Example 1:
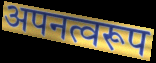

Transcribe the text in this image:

अपनत्वरूप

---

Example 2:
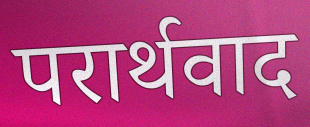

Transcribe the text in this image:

परार्थवाद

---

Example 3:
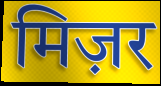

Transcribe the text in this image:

मिज़र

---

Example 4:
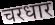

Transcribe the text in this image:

चरधार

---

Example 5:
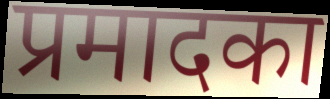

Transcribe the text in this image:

प्रमादका